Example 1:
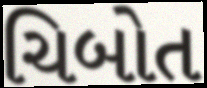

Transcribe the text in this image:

ચિબોત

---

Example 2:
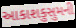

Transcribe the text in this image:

આકાશકુસુમની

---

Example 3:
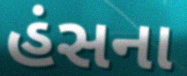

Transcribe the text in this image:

હંસના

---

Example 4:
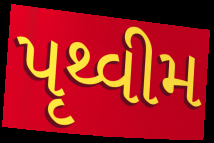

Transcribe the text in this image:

પૃથ્વીમ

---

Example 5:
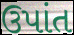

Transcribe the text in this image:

ઉપાંત